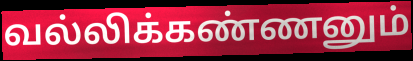
வல்லிக்கண்ணனும்